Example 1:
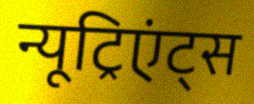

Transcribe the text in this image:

न्यूट्रिएंट्स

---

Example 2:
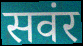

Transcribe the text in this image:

सवंर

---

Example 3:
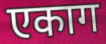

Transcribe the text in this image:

एकाग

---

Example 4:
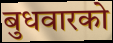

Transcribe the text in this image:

बुधवारको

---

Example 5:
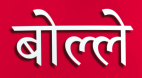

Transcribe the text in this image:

बोल्ले